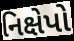
નિક્ષેપો